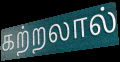
கற்றலால்